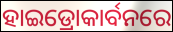
ହାଇଡ୍ରୋକାର୍ବନରେ